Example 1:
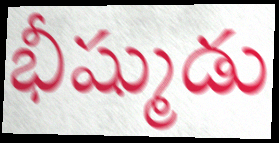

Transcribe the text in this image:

భీష్ముడు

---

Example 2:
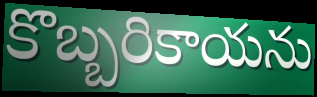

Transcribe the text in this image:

కొబ్బరికాయను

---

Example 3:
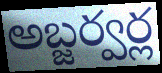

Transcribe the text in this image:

అబ్జర్వర్ల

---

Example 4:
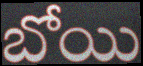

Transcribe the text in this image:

బోయి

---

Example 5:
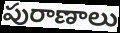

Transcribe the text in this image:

పురాణాలు